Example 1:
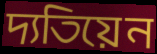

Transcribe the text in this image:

দ্যতিয়েন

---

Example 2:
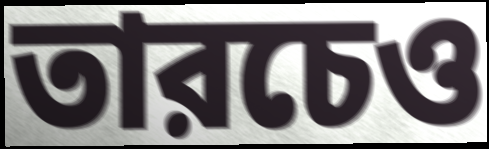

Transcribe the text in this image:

তারচেও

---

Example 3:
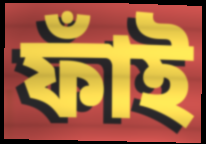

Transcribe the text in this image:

ফাঁই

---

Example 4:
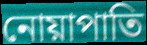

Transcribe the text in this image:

নোয়াপাতি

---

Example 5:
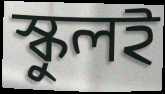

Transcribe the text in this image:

স্কুলই